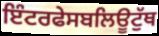
ਇੰਟਰਫੇਸਬਲਿਊਟੁੱਥ